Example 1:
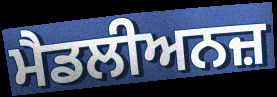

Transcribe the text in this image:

ਮੈਡਲੀਅਨਜ਼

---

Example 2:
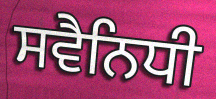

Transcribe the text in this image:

ਸਵੈਨਿਧੀ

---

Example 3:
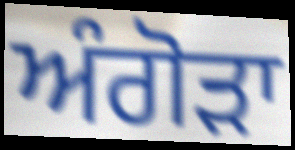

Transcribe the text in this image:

ਅੰਗੋੜਾ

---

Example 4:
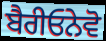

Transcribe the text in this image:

ਬੈਰੀਓਨੇਵੋ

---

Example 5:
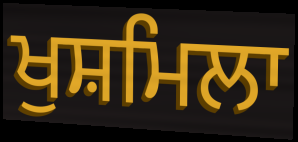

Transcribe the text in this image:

ਖੁਸ਼ਮਿਲਾ